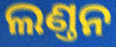
ଲଣ୍ତନ